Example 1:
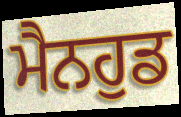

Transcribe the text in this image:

ਮੈਨਹੁਡ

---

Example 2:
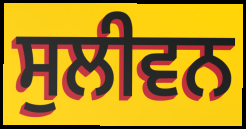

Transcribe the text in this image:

ਸੁਲੀਵਨ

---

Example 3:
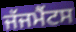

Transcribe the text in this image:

ਜੱਜਮੈਂਟਸ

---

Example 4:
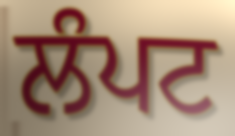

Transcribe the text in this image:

ਲੰਪਟ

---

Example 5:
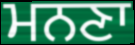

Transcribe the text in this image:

ਮਨਣਾ